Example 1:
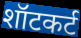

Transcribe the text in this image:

शॉटकर्ट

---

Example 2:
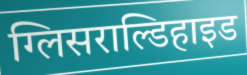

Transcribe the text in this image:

ग्लिसराल्डिहाइड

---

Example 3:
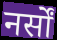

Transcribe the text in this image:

नर्सों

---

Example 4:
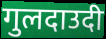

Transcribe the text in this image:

गुलदाउदी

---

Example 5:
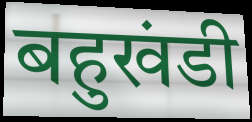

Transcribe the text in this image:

बहुखंडी